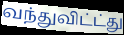
வந்துவிட்ட்து